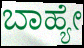
ಬಾಹ್ಯೇ